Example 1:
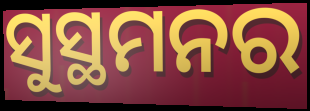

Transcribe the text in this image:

ସୁସ୍ଥମନର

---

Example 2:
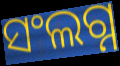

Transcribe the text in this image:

ସଂଲଗ୍ନ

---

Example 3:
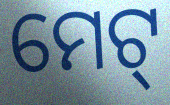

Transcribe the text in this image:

ମେଟ୍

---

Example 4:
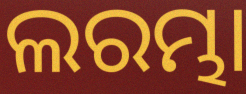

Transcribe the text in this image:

ଲରମ୍ଭା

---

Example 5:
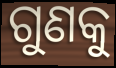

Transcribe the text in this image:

ଗୁଣକୁ